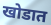
खोडात